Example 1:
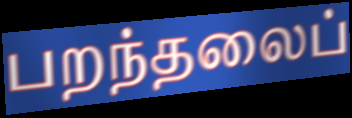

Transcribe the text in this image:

பறந்தலைப்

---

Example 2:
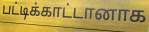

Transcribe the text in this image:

பட்டிக்காட்டானாக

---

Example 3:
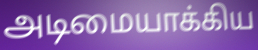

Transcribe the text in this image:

அடிமையாக்கிய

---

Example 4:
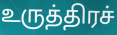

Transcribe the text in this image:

உருத்திரச்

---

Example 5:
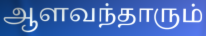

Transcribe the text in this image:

ஆளவந்தாரும்